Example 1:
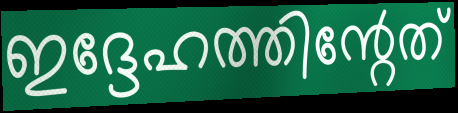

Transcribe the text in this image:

ഇദ്ദേഹത്തിന്റേത്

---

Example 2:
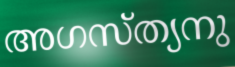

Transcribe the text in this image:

അഗസ്ത്യനു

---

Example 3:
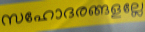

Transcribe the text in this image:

സഹോദരങ്ങളല്ലേ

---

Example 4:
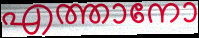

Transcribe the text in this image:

എത്താനോ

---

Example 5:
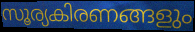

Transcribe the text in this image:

സൂര്യകിരണങ്ങളും